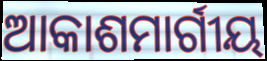
ଆକାଶମାର୍ଗୀୟ